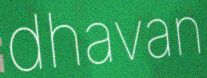
dhavan